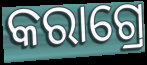
କରାଗ୍ରେ